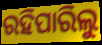
ରହିପାରିଲୁ